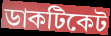
ডাকটিকেট